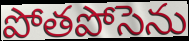
పోతపోసెను